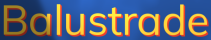
Balustrade